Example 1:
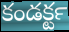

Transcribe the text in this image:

కండక్టర్‍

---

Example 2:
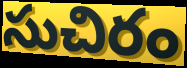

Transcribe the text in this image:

సుచిరం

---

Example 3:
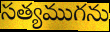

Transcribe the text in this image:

సత్యముగను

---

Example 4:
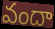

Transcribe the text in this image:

వందా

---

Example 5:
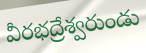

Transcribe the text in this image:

వీరభద్రేశ్వరుండు